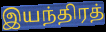
இயந்திரத்